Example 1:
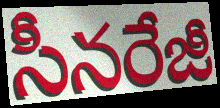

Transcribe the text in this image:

సీనరేజీ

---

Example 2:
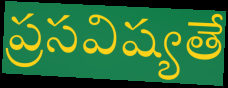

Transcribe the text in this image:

ప్రసవిష్యతే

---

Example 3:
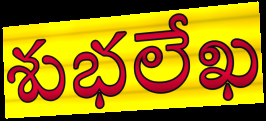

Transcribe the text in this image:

శుభలేఖ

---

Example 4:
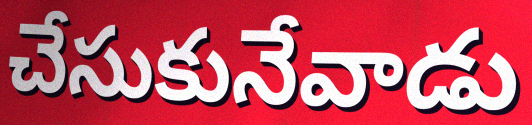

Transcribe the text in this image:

చేసుకునేవాడు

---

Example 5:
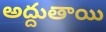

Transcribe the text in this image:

అద్దుతాయి